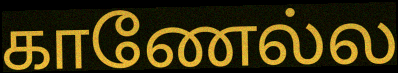
காணேல்ல